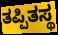
ತಪ್ಪಿತಸ್ಥ